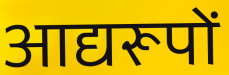
आद्यरूपों